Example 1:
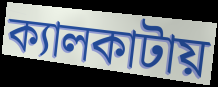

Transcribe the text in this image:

ক্যালকাটায়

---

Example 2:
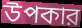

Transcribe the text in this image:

উপকার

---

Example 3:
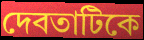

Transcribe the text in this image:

দেবতাটিকে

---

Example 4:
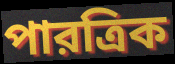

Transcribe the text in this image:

পারত্রিক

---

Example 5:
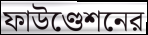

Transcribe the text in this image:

ফাউণ্ডেশনের